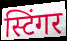
स्टिंगर